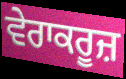
ਵੇਰਾਕਰੂਜ਼